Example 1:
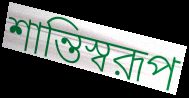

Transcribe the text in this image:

শান্তিস্বরূপ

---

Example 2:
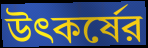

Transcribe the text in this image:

উৎকর্ষের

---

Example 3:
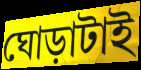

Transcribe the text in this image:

ঘোড়াটাই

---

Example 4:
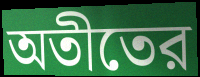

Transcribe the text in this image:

অতীতের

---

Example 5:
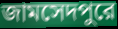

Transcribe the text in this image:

জামসেদপুরে